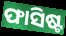
ଫାସିଷ୍ଟ